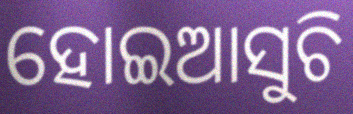
ହୋଇଆସୁଚି